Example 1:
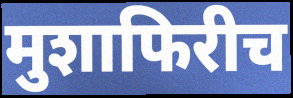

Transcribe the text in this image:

मुशाफिरीच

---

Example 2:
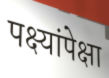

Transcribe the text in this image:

पक्ष्यांपेक्षा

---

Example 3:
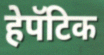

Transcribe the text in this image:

हेपॅटिक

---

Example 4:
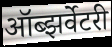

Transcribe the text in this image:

ऑब्झर्वेटरी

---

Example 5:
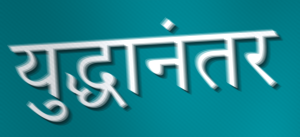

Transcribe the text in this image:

युद्धानंतर